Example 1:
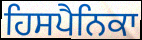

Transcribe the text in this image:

ਹਿਸਪੈਨਿਕਾ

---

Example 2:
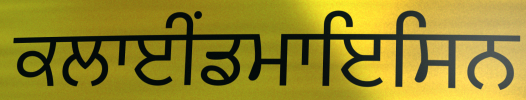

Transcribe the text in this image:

ਕਲਾਈਂਡਮਾਇਸਿਨ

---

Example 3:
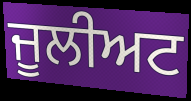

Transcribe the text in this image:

ਜੂਲੀਅਟ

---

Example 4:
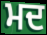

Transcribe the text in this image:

ਮਦ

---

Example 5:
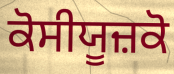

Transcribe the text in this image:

ਕੋਸੀਯੂਜ਼ਕੋ